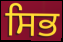
ਸਿਭ